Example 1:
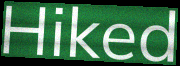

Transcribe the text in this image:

Hiked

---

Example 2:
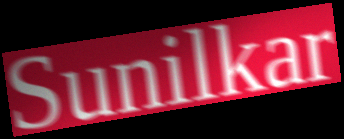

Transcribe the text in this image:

Sunilkar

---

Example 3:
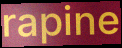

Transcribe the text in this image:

rapine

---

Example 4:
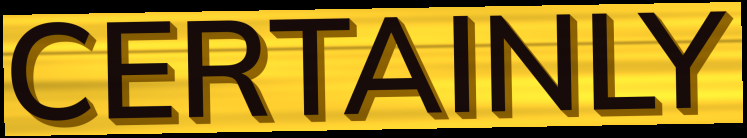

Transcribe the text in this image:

CERTAINLY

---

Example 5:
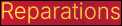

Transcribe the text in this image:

Reparations